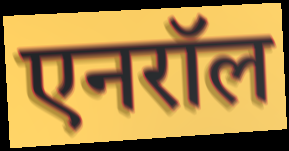
एनरॉल